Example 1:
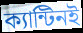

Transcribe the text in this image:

ক্যান্টিনই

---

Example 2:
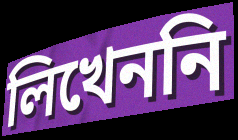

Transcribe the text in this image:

লিখেননি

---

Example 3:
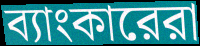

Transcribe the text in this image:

ব্যাংকারেরা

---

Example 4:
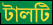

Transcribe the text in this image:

টালটি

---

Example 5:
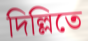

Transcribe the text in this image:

দিল্লিতে